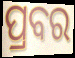
ପ୍ରବର